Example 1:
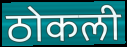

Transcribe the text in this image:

ठोकली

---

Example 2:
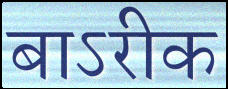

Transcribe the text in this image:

बाऽरीक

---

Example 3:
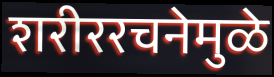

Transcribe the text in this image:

शरीररचनेमुळे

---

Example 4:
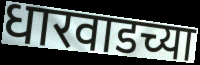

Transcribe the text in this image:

धारवाडच्या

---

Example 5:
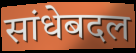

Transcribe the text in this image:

सांधेबदल